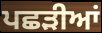
ਪਛੜੀਆਂ